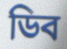
ডিব